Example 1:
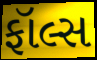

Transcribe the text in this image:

ફૉલ્સ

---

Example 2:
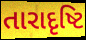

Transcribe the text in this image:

તારાદૃષ્ટિ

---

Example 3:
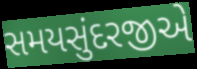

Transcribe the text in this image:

સમયસુંદરજીએ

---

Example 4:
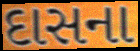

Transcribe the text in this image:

દાસના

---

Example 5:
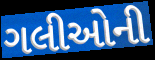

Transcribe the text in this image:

ગલીઓની